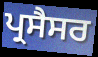
ਪ੍ਰਸੈਸਰ